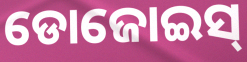
ଡୋଜୋଇସ୍